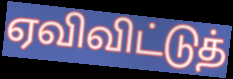
ஏவிவிட்டுத்